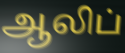
ஆலிப்